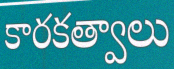
కారకత్వాలు